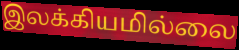
இலக்கியமில்லை